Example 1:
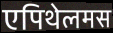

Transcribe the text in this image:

एपिथेलमस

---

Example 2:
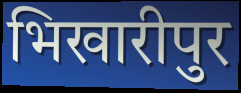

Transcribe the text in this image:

भिखारीपुर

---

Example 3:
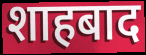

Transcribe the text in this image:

शाहबाद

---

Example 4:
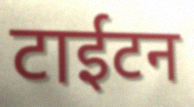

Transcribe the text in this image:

टाईटन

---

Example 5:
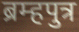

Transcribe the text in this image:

ब्रम्हपुत्र